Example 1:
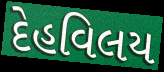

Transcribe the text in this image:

દેહવિલય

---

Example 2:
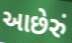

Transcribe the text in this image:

આછેરું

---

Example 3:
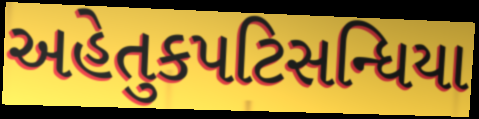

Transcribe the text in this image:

અહેતુકપટિસન્ધિયા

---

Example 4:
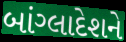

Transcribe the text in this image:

બાંગ્લાદેશને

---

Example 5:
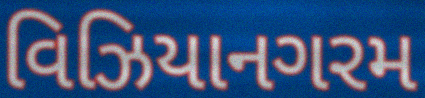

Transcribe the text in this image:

વિઝિયાનગરમ